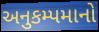
અનુકમ્પમાનો